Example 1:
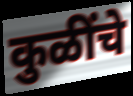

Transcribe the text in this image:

कुळींचे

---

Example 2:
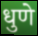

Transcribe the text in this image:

धुणे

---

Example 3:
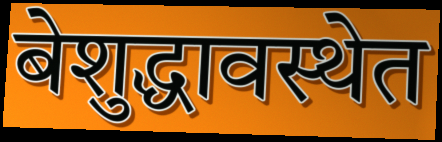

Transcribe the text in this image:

बेशुद्धावस्थेत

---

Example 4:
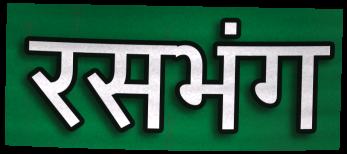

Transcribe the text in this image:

रसभंग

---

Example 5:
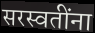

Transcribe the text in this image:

सरस्वतींना